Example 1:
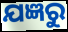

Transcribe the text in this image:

ଯଜ୍ଞରୁ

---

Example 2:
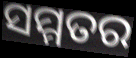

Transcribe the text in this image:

ସମ୍ମତର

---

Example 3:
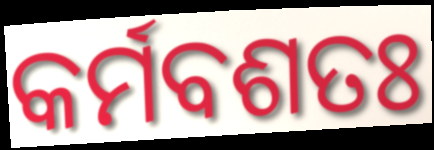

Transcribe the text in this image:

କର୍ମବଶତଃ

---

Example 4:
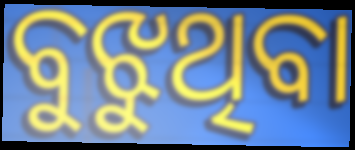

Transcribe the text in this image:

ବୁଝୁଥିବା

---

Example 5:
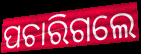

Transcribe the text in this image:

ପଚାରିଗଲେ